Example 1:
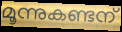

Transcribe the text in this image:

മൂന്നുകണ്ടന്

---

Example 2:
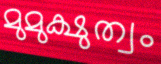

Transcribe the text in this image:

മുമുക്ഷുത്വം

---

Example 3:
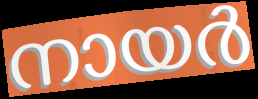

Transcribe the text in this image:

നായർ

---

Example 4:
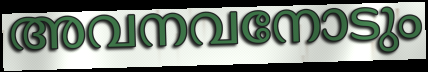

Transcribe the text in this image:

അവനവനോടും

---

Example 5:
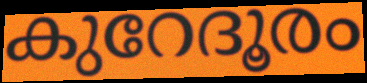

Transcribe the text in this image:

കുറേദൂരം